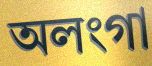
অলংগা